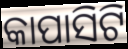
କାପାସିଟି